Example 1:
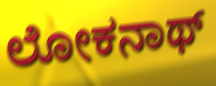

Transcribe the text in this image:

ಲೋಕನಾಥ್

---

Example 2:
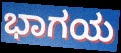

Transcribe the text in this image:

ಭಾಗಯ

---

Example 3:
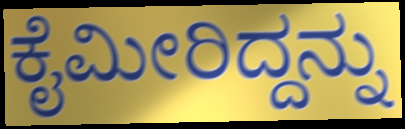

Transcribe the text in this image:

ಕೈಮೀರಿದ್ದನ್ನು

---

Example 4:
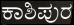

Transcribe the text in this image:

ಕಾಶಿಪುರ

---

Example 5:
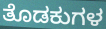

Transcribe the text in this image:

ತೊಡಕುಗಳ